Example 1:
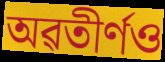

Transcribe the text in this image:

অৱতীৰ্ণও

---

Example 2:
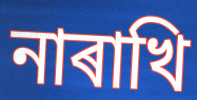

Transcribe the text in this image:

নাৰাখি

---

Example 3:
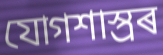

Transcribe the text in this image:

যোগশাস্ত্ৰৰ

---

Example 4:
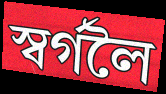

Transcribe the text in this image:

স্বৰ্গলৈ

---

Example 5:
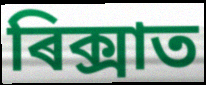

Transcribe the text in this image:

ৰিক্সাত